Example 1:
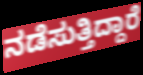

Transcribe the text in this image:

ನಡೆಸುತ್ತಿದ್ದಾರೆ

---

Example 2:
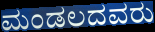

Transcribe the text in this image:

ಮಂಡಲದವರು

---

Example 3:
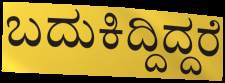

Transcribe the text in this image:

ಬದುಕಿದ್ದಿದ್ದರೆ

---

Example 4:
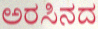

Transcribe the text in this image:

ಅರಸಿನದ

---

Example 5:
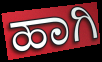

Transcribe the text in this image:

ಹಾಗಿ